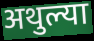
अथुल्या